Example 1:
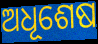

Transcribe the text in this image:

ଅଧୂଶେଷ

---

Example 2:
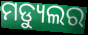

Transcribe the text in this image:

ମଡ୍ୟୁଲର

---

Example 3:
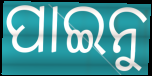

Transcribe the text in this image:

ପାଇନୁ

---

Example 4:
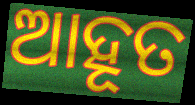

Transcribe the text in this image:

ଆହୂତ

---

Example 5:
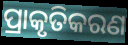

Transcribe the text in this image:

ପ୍ରାକୃତିକରଣ